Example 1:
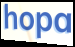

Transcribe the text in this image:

hopa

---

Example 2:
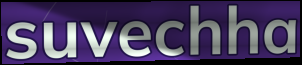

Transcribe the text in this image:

suvechha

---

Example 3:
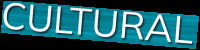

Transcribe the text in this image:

CULTURAL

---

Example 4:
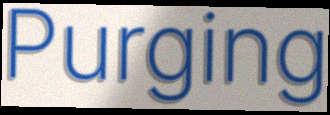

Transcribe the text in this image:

Purging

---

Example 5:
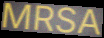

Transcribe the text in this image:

MRSA